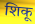
शिकू